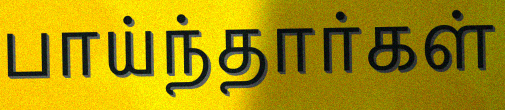
பாய்ந்தார்கள்